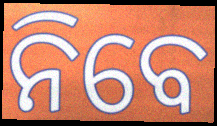
ନିବେ